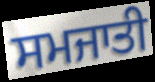
ਸਮਜਾਤੀ